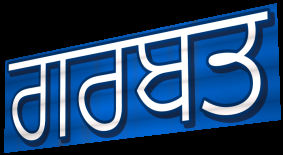
ਗਰਬਤ